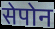
सेपोन